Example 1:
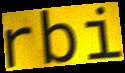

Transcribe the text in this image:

rbi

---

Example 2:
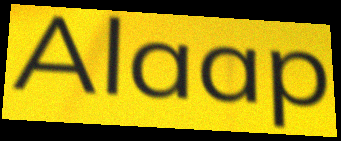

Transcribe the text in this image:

Alaap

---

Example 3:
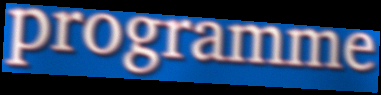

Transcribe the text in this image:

programme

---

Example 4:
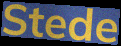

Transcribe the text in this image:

Stede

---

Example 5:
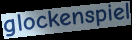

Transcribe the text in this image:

glockenspiel